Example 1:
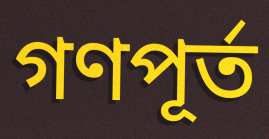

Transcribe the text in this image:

গণপূর্ত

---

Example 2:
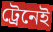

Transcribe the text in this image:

ট্রেনেই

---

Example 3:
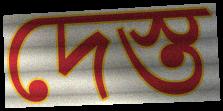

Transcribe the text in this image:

দেস্ত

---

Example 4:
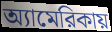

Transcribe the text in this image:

অ্যামেরিকায়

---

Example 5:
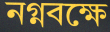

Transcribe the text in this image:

নগ্নবক্ষে